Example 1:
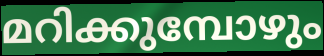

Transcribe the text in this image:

മറിക്കുമ്പോഴും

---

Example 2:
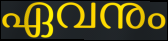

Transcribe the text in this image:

ഏവനും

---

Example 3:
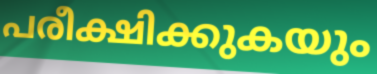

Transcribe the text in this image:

പരീക്ഷിക്കുകയും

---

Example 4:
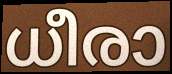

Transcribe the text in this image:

ധീരാ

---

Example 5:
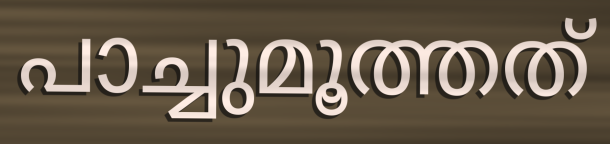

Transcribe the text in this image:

പാച്ചുമൂത്തത്